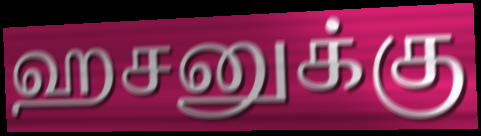
ஹசனுக்கு